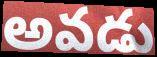
అవడు